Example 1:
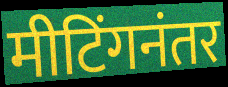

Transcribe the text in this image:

मीटिंगनंतर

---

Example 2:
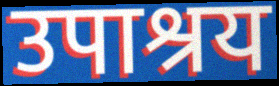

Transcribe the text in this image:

उपाश्रय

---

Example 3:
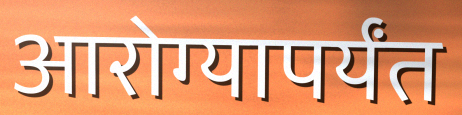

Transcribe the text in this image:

आरोग्यापर्यंत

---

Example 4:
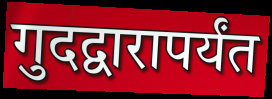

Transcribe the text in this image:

गुदद्वारापर्यंत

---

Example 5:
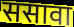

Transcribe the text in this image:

ससावा